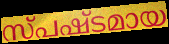
സ്പഷ്ടമായ